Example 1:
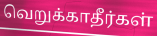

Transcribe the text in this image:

வெறுக்காதீர்கள்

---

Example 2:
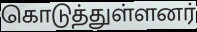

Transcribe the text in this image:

கொடுத்துள்ளனர்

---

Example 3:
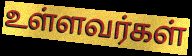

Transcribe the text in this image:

உள்ளவர்கள்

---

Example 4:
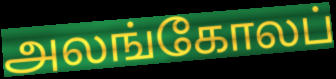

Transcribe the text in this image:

அலங்கோலப்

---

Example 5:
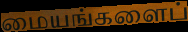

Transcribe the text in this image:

மையங்களைப்